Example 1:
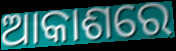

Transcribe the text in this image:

ଆକାଶରେ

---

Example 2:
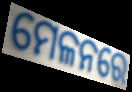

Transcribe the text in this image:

ମେଳନରେ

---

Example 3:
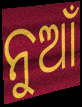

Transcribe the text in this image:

ନୁଆଁ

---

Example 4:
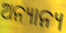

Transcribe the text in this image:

ଅନ୍ୟାନ୍ୟ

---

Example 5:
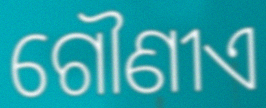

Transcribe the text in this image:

ଗୌଣୀଏ